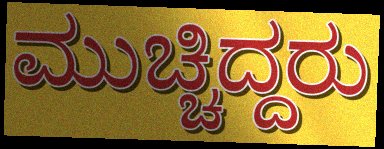
ಮುಚ್ಚಿದ್ದರು